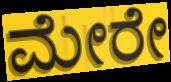
ಮೇರೇ